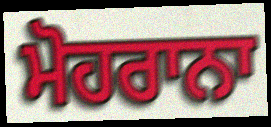
ਮੋਹਰਾਨਾ